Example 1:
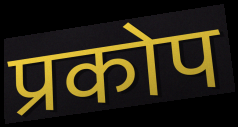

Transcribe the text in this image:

प्रकोप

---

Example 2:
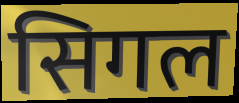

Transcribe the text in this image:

सिगल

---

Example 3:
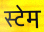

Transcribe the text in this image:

स्टेम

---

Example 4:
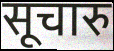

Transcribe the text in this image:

सूचारु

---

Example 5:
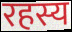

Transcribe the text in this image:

रहस्य